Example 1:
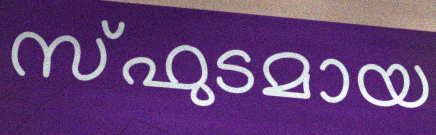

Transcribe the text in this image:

സ്ഫുടമായ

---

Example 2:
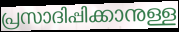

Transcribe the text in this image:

പ്രസാദിപ്പിക്കാനുള്ള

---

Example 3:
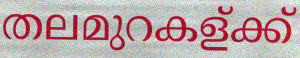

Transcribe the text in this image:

തലമുറകള്ക്ക്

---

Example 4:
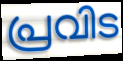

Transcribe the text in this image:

പ്രവിട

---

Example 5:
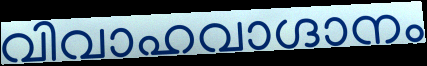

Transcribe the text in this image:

വിവാഹവാഗ്ദാനം